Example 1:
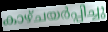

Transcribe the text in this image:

കാഴ്ചയർപ്പിച്ചു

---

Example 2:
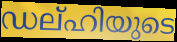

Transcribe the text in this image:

ഡല്ഹിയുടെ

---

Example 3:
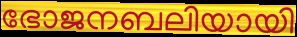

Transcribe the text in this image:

ഭോജനബലിയായി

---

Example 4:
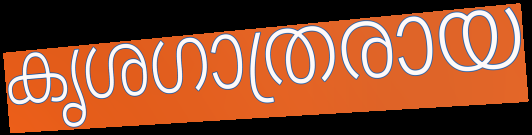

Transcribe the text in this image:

കൃശഗാത്രരായ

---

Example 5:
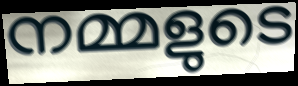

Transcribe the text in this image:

നമ്മളുടെ